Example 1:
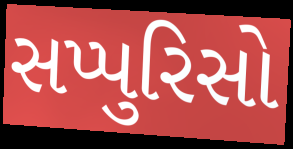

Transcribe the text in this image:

સપ્પુરિસો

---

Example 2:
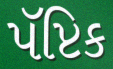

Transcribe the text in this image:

પૅપ્ટિક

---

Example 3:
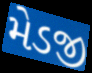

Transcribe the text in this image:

મેડજી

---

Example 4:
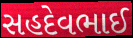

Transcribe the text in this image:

સહદેવભાઈ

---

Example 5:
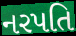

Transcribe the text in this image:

નરપતિ